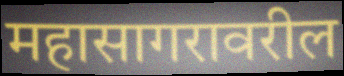
महासागरावरील